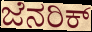
ಜೆನರಿಕ್